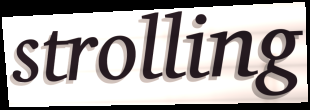
strolling